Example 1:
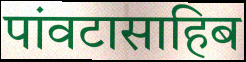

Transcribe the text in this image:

पांवटासाहिब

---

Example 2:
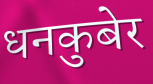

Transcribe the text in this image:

धनकुबेर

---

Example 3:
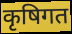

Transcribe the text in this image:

कृषिगत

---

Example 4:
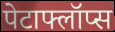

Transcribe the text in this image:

पेटाफ्लॉप्स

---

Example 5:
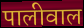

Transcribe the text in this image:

पालीवाल